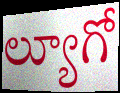
ల్యూగో